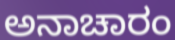
ಅನಾಚಾರಂ